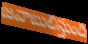
జవాబులిస్తుంది